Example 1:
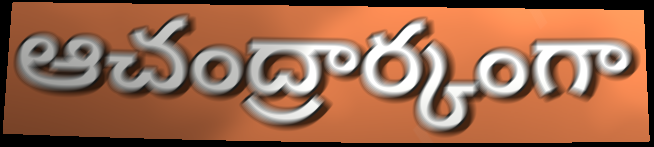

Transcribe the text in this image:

ఆచంద్రార్కంగా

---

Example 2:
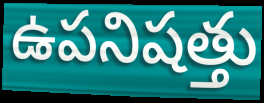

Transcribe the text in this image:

ఉపనిషత్తు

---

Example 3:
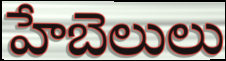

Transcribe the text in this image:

హేబెలులు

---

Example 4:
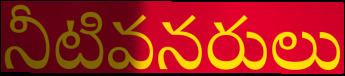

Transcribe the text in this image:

నీటివనరులు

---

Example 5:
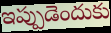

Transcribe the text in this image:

ఇప్పుడెందుకు